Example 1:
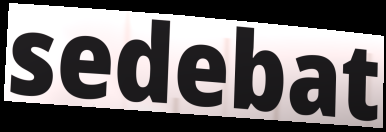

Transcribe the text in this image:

sedebat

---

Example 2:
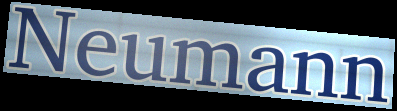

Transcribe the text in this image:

Neumann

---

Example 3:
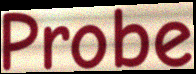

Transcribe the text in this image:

Probe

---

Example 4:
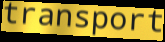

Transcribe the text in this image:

transport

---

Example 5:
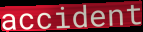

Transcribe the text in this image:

accident